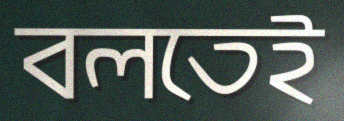
বলতেই